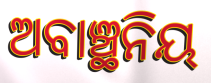
ଅବାଞ୍ଛନିୟ